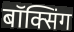
बॉक्सिंग